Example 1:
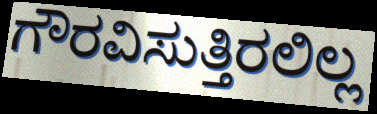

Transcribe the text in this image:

ಗೌರವಿಸುತ್ತಿರಲಿಲ್ಲ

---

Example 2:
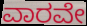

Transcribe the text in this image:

ವಾರವೇ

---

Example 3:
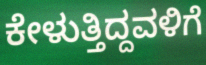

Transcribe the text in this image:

ಕೇಳುತ್ತಿದ್ದವಳಿಗೆ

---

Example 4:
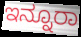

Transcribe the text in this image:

ಇನ್ನೂರಾ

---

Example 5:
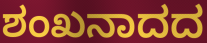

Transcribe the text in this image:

ಶಂಖನಾದದ